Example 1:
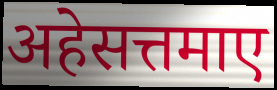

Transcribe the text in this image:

अहेसत्तमाए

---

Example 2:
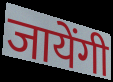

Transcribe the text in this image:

जायेंगी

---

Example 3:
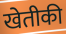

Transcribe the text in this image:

खेतीकी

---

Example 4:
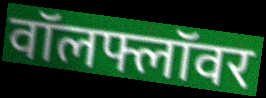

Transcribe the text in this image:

वॉलफ्लॉवर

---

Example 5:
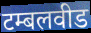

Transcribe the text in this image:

टम्बलवीड